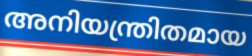
അനിയന്ത്രിതമായ